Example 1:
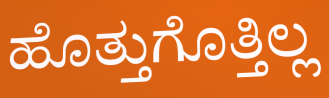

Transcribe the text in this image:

ಹೊತ್ತುಗೊತ್ತಿಲ್ಲ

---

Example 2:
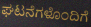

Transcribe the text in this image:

ಘಟನೆಗಳೊಂದಿಗೆ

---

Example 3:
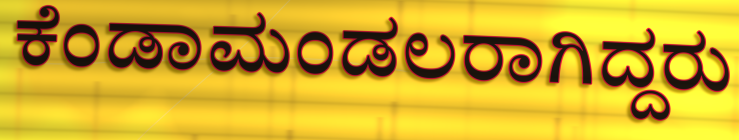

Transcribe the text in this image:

ಕೆಂಡಾಮಂಡಲರಾಗಿದ್ದರು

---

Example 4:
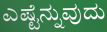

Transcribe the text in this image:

ಎಷ್ಟೆನ್ನುವುದು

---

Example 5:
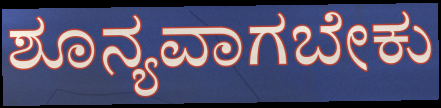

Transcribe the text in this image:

ಶೂನ್ಯವಾಗಬೇಕು